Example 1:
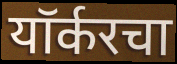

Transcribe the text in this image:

यॉर्करचा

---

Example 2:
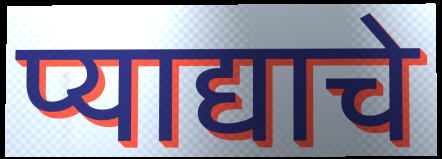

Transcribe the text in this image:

प्याद्याचे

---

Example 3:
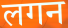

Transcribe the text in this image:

लगन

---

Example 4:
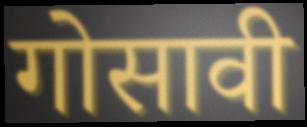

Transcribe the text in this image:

गोसावी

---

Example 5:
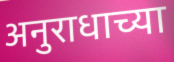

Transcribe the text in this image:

अनुराधाच्या